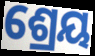
ଶ୍ରେୟ